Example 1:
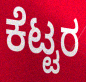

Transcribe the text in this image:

ಕೆಟ್ಟರ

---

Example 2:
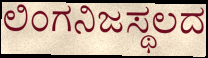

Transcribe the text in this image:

ಲಿಂಗನಿಜಸ್ಥಲದ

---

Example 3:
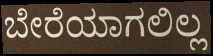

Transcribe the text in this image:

ಬೇರೆಯಾಗಲಿಲ್ಲ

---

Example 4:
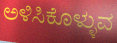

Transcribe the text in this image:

ಅಳಿಸಿಕೊಳ್ಳುವ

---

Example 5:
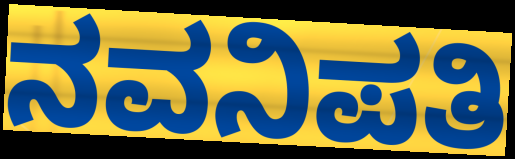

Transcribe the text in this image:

ನವನಿಪತಿ